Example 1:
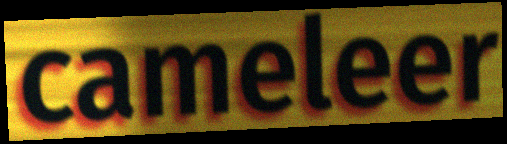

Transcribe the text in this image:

cameleer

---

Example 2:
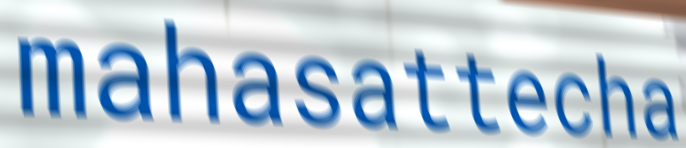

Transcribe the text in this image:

mahasattecha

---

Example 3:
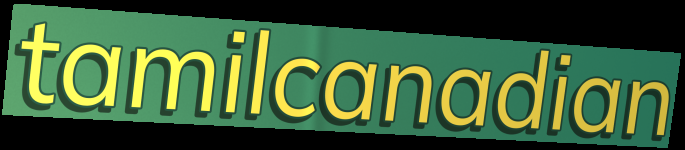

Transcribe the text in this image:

tamilcanadian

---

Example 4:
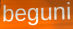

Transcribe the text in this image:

beguni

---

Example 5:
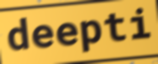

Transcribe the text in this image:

deepti